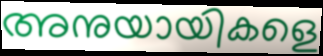
അനുയായികളെ